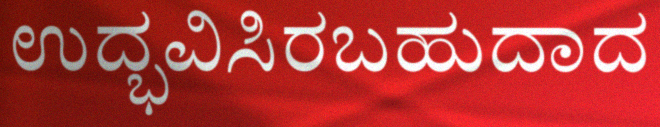
ಉದ್ಭವಿಸಿರಬಹುದಾದ